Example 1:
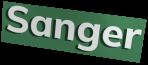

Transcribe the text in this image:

Sanger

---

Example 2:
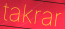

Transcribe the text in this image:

takrar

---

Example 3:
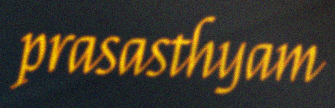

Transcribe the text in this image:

prasasthyam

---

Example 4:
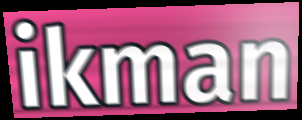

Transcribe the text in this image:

ikman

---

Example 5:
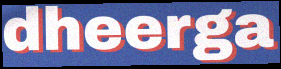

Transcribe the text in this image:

dheerga